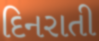
દિનરાતી